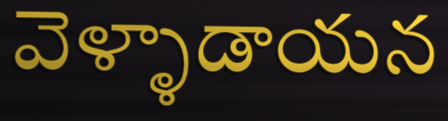
వెళ్ళాడాయన